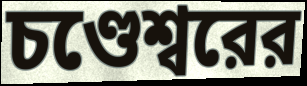
চণ্ডেশ্বরের